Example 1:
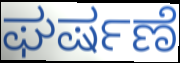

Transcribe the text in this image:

ಘರ್ಷಣೆ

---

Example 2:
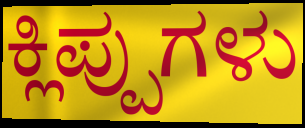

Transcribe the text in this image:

ಕ್ಲಿಪ್ಪುಗಳು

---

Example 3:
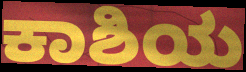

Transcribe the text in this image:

ಕಾಶಿಯ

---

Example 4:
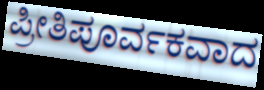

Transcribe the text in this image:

ಪ್ರೀತಿಪೂರ್ವಕವಾದ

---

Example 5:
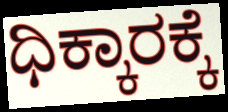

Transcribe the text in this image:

ಧಿಕ್ಕಾರಕ್ಕೆ